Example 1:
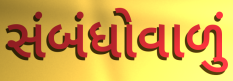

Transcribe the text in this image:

સંબંધોવાળું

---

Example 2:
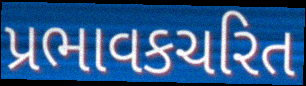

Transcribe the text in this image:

પ્રભાવકચરિત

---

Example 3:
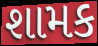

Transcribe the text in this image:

શામક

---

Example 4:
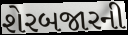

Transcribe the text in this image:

શેરબજારની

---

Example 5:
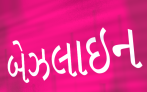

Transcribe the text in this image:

બેઝલાઇન